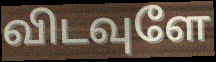
விடவுளே